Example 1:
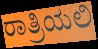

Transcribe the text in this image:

ರಾತ್ರಿಯಲಿ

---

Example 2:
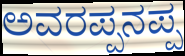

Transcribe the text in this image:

ಅವರಪ್ಪನಪ್ಪ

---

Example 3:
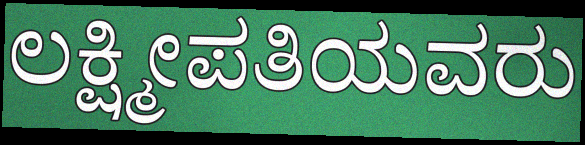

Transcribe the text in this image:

ಲಕ್ಷ್ಮೀಪತಿಯವರು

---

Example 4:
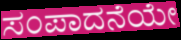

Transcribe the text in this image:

ಸಂಪಾದನೆಯೇ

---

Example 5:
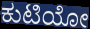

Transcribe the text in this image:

ಕುಟಿಯೋ